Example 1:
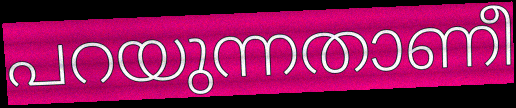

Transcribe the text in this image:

പറയുന്നതാണീ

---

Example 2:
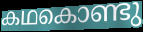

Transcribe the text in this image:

കഥകൊണ്ടു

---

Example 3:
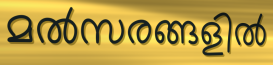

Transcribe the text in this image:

മൽസരങ്ങളിൽ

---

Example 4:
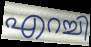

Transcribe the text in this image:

എറച്ചി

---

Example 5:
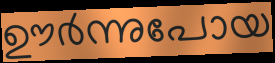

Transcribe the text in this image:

ഊർന്നുപോയ